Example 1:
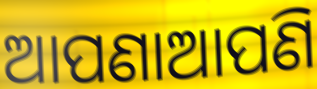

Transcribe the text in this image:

ଆପଣାଆପଣି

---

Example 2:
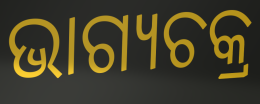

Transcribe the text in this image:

ଭାଗ୍ୟଚକ୍ର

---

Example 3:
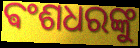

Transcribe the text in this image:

ଵଂଶଧରଙ୍କୁ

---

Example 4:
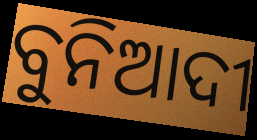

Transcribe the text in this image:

ବୁନିଆଦୀ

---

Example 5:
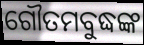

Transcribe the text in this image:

ଗୌତମବୁଦ୍ଧଙ୍କ